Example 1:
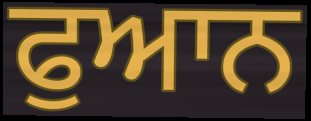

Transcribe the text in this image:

ਫੁਆਨ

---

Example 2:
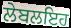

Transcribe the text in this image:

ਲੇਬਲਇਹ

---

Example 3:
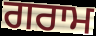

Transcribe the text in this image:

ਗਰਾਮ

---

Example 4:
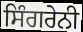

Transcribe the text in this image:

ਸਿੰਗਰੇਨੀ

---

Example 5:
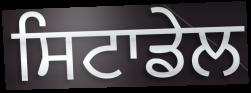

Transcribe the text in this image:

ਸਿਟਾਡੇਲ